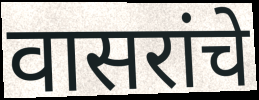
वासरांचे